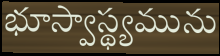
భూస్వాస్థ్యమును